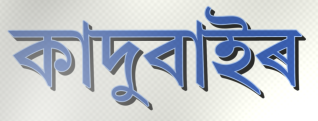
কাদুবাইৰ